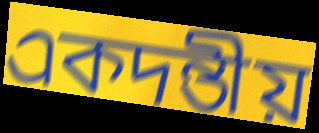
একদন্তীয়